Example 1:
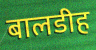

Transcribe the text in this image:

बालडीह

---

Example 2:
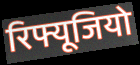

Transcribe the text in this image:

रिफ्यूजियो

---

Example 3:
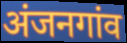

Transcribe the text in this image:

अंजनगांव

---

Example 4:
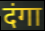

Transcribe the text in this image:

दंगा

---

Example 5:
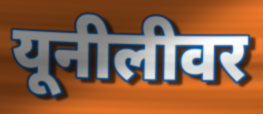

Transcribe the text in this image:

यूनीलीवर